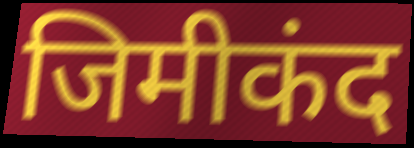
जिमीकंद